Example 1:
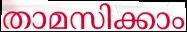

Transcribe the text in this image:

താമസിക്കാം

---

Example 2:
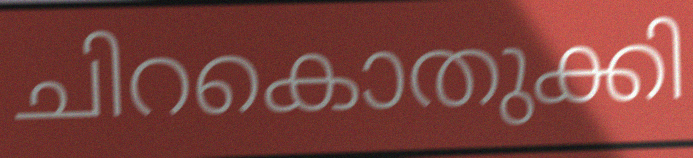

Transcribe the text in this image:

ചിറകൊതുക്കി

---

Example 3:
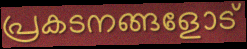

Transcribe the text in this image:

പ്രകടനങ്ങളോട്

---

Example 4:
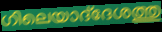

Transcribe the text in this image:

ഗിലെയാദ്‌ദേശത്തു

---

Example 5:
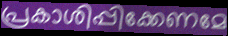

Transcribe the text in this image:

പ്രകാശിപ്പിക്കേണമേ